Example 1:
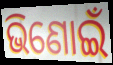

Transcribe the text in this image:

ଭିଣୋଇଁ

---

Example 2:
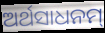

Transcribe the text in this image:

ଅର୍ଥସାଧନମ୍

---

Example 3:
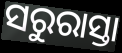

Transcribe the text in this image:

ସରୁରାସ୍ତା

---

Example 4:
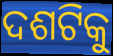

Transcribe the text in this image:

ଦଶଟିକୁ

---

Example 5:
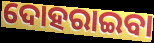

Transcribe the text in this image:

ଦୋହରାଇବା